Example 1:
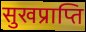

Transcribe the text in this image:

सुखप्राप्ति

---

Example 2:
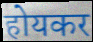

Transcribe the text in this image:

होयकर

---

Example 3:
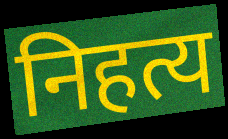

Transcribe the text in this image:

निहत्य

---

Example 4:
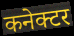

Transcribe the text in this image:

कनेक्टर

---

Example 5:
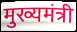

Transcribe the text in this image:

मुख्यमंत्री